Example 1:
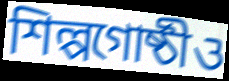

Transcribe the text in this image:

শিল্পগোষ্ঠীও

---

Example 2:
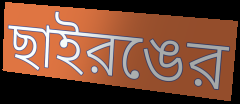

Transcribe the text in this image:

ছাইরঙের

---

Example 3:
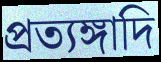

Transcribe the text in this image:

প্রত্যঙ্গাদি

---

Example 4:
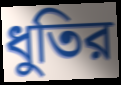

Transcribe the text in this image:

ধুতির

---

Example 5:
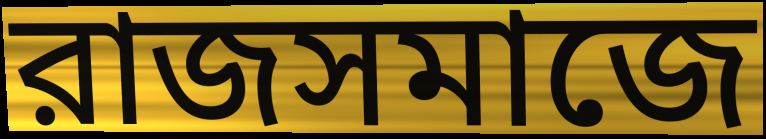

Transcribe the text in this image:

রাজসমাজে